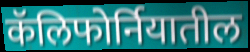
कॅलिफोर्नियातील